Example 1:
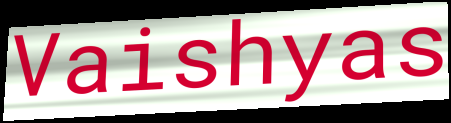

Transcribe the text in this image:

Vaishyas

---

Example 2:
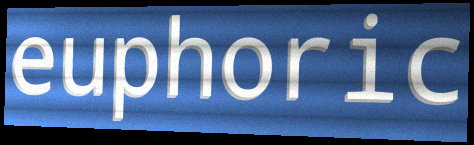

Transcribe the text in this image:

euphoric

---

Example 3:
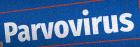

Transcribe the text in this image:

Parvovirus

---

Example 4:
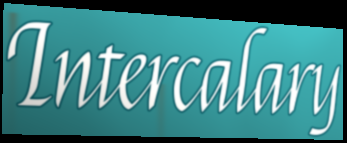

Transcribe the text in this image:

Intercalary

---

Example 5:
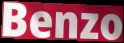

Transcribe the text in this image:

Benzo